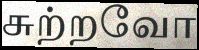
சுற்றவோ